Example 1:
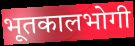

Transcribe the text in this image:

भूतकालभोगी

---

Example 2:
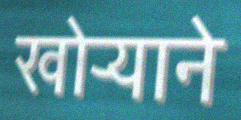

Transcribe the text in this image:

खोऱ्याने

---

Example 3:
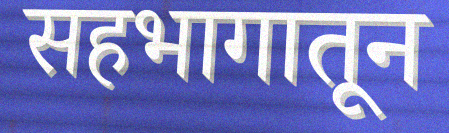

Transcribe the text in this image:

सहभागातून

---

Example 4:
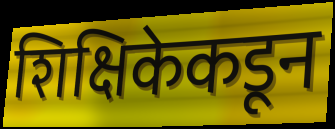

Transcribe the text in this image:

शिक्षिकेकडून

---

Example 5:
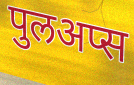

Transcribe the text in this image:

पुलअप्स